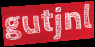
gutjnl